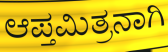
ಆಪ್ತಮಿತ್ರನಾಗಿ